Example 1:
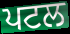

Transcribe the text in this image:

ਪਟਲ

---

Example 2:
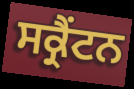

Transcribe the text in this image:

ਸਕ੍ਰੈਂਟਨ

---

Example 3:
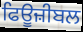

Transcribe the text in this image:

ਫਿਊਜ਼ੀਬਲ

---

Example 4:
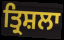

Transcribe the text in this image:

ਤ੍ਰਿਸ਼ਲਾ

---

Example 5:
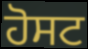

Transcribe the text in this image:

ਹੋਸਟ